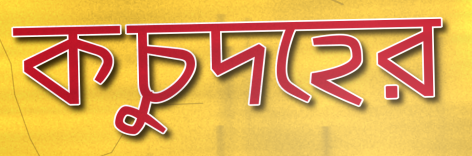
কচুদহের